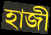
হাজী